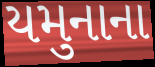
યમુનાના